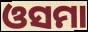
ଓସମା